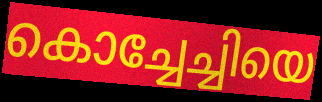
കൊച്ചേച്ചിയെ